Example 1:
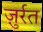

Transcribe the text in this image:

ज़ुर्रत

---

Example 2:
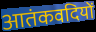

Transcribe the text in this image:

आतंकवदियों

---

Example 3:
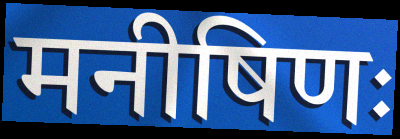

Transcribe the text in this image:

मनीषिणः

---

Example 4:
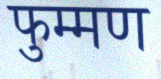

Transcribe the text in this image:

फुम्मण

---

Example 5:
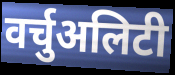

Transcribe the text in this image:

वर्चुअलिटी